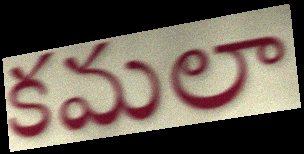
కమలా